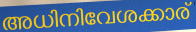
അധിനിവേശക്കാര്